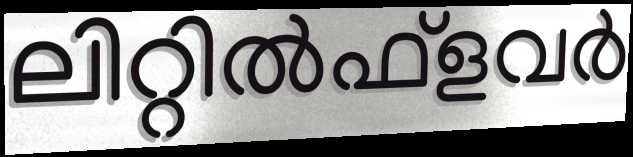
ലിറ്റിൽഫ്ളവർ